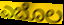
ಎಬೊಲ